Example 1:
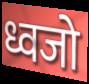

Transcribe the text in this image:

ध्वजो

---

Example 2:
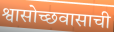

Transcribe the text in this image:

श्वासोच्छवासाची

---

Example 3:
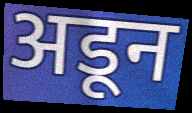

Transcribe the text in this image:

अडून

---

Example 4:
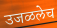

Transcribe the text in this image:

उजळलेच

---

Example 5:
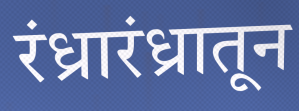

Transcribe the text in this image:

रंध्रारंध्रातून